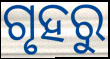
ଗୃହରୁ